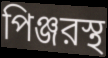
পিঞ্জরস্থ